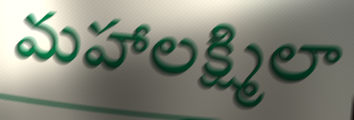
మహాలక్ష్మిలా